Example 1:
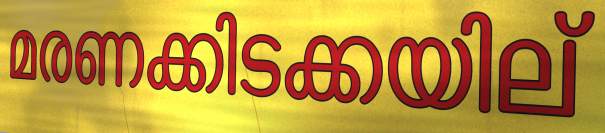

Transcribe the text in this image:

മരണക്കിടക്കയില്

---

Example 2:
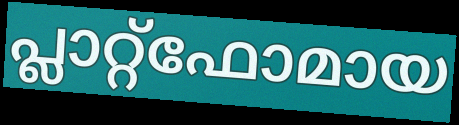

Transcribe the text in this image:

പ്ലാറ്റ്ഫോമായ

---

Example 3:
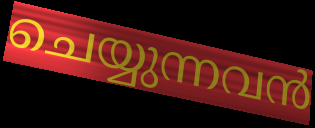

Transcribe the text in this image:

ചെയ്യുന്നവൻ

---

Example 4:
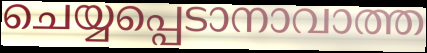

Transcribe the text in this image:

ചെയ്യപ്പെടാനാവാത്ത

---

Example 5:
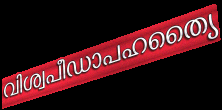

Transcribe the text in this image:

വിശ്വപീഡാപഹത്യൈ